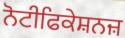
ਨੋਟੀਫਿਕੇਸ਼ਨਜ਼